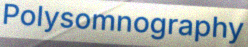
Polysomnography